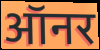
ऑनर